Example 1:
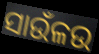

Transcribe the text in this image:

ସାଉଁଳଉ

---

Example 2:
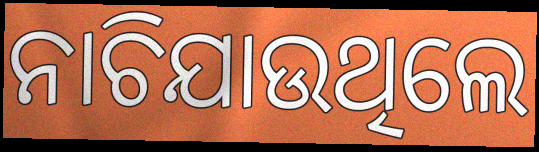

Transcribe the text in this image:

ନାଚିଯାଉଥିଲେ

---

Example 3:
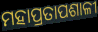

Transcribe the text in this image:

ମହାପ୍ରତାପଶାଳୀ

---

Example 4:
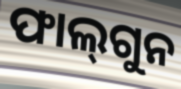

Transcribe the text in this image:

ଫାଲ୍‍ଗୁନ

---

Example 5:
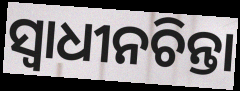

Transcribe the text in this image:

ସ୍ୱାଧୀନଚିନ୍ତା